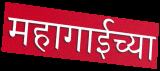
महागाईच्या